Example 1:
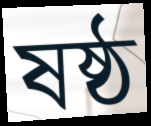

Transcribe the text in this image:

ষষ্ঠ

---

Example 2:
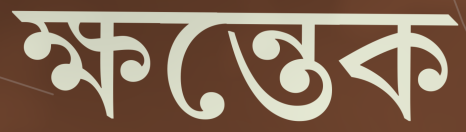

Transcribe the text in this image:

ক্ষন্তেক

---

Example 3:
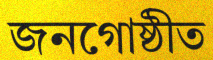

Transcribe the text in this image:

জনগোষ্ঠীত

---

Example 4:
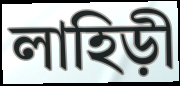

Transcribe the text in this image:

লাহিড়ী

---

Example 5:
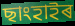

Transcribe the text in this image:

ছাংহাইৰ